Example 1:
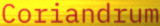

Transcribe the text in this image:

Coriandrum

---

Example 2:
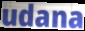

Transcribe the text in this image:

udana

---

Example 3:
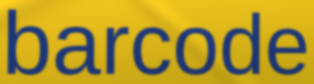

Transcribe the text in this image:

barcode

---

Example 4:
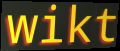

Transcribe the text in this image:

wikt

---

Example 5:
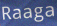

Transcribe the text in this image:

Raaga